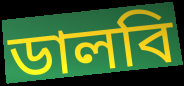
ডালবি